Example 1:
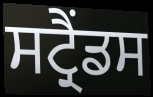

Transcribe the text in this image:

ਸਟ੍ਰੈਂਡਸ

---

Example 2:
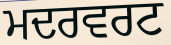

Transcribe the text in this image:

ਮਦਰਵਰਟ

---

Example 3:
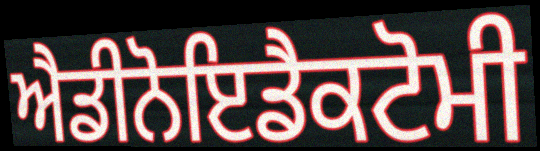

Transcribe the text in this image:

ਐਡੀਨੋਇਡੈਕਟੋਮੀ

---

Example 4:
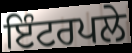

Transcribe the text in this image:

ਇੰਟਰਪਲੇ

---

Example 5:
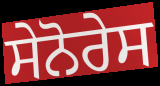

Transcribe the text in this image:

ਸੇਨੋਰੇਸ